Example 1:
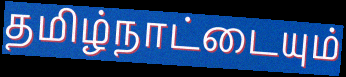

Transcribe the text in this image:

தமிழ்நாட்டையும்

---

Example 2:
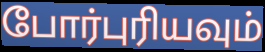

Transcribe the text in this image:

போர்புரியவும்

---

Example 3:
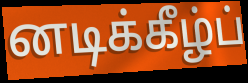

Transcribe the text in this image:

னடிக்கீழ்ப்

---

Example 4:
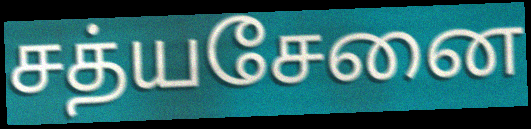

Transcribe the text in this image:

சத்யசேனை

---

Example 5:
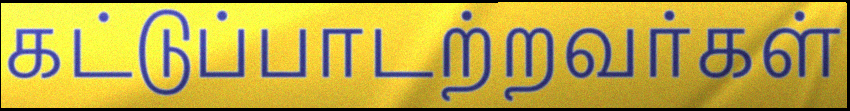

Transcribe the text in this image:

கட்டுப்பாடற்றவர்கள்